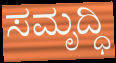
ಸಮೃದ್ಧಿ